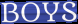
BOYS